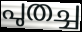
പുതച്ച